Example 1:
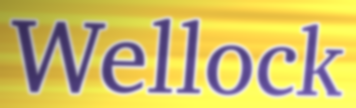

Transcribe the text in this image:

Wellock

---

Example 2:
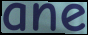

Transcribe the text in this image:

ane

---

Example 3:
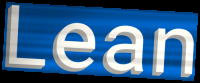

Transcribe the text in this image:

Lean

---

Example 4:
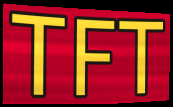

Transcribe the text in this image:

TFT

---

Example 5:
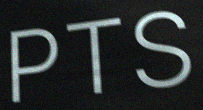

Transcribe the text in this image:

PTS